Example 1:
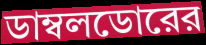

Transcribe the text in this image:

ডাম্বলডোরের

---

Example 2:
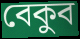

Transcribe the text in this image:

বেকুব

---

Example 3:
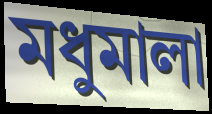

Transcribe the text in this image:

মধুমালা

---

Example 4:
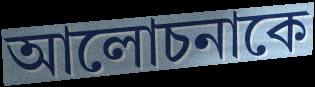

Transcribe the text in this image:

আলোচনাকে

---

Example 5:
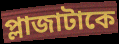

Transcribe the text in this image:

প্লাজাটাকে